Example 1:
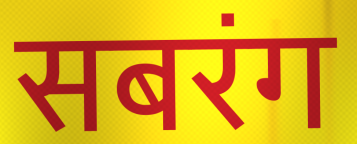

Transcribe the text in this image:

सबरंग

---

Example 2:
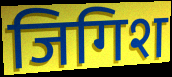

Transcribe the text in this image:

जिगिश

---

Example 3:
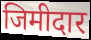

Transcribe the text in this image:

जिमीदार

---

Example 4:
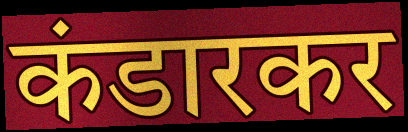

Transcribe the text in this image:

कंडारकर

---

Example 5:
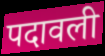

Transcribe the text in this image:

पदावली